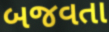
બજવતા